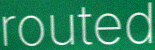
routed